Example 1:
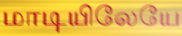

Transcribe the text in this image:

மாடியிலேயே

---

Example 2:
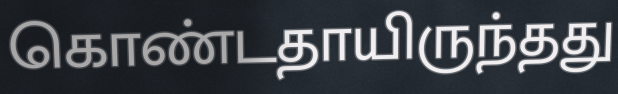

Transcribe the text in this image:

கொண்டதாயிருந்தது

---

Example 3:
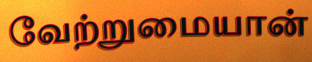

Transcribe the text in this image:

வேற்றுமையான்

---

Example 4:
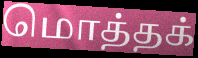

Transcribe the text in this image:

மொத்தக்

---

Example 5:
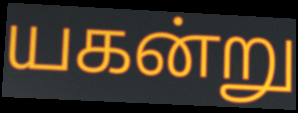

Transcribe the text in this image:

யகன்று